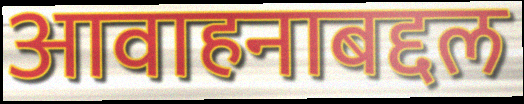
आवाहनाबद्दल